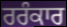
ਰਰੰਕਾਰ